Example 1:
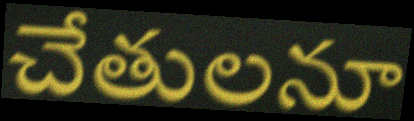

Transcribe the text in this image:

చేతులనూ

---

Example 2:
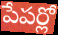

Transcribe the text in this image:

పేపర్లో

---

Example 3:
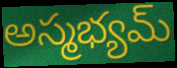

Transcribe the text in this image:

అస్మభ్యమ్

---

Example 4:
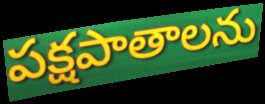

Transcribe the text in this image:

పక్షపాతాలను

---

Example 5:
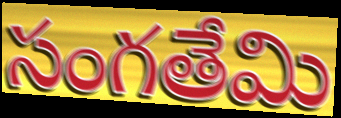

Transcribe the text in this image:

సంగతేమి